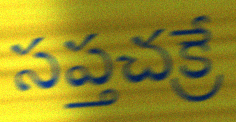
సప్తచక్రే